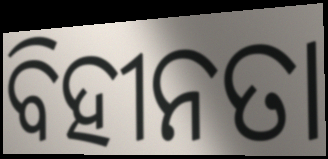
ବିହୀନତା